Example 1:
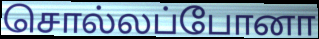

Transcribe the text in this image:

சொல்லப்போனா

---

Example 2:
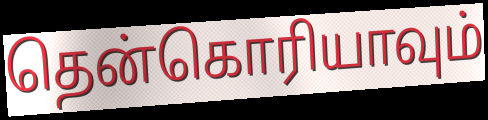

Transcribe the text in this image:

தென்கொரியாவும்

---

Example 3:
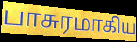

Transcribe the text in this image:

பாசுரமாகிய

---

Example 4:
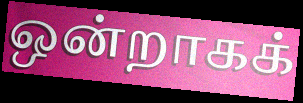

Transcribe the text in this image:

ஒன்றாகக்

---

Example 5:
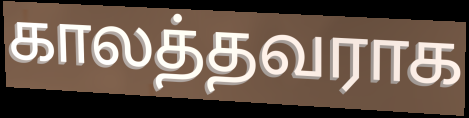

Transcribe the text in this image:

காலத்தவராக